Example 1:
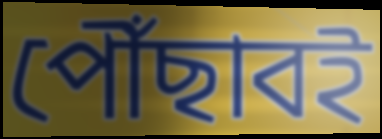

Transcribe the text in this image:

পৌঁছাবই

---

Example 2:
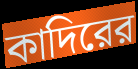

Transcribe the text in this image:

কাদিরের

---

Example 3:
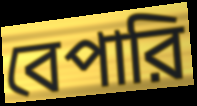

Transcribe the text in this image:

বেপারি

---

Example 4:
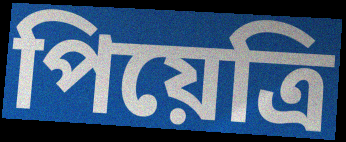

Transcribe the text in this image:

পিয়েত্রি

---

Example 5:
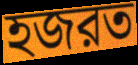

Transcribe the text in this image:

হজরত